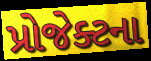
પ્રોજેક્ટના